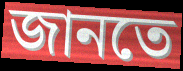
জানতে